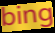
bing